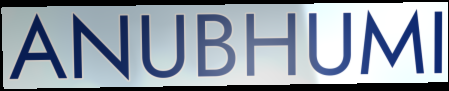
ANUBHUMI